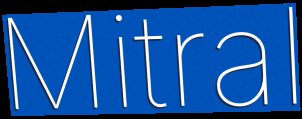
Mitral